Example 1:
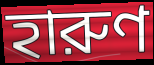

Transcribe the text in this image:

হারুণ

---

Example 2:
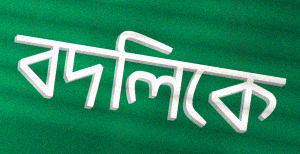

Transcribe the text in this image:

বদলিকে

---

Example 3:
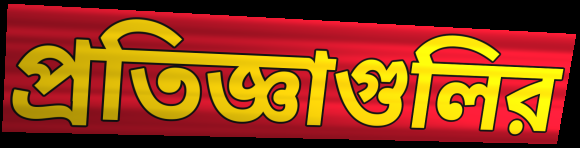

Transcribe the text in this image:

প্রতিজ্ঞাগুলির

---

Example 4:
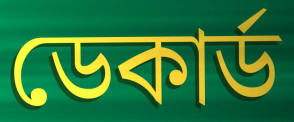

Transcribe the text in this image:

ডেকার্ড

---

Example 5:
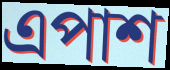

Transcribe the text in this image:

এপাশ